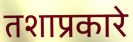
तशाप्रकारे